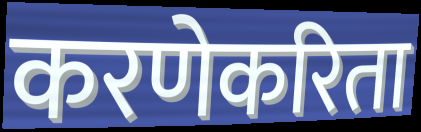
करणेकरिता